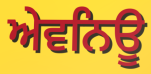
ਅੇਵਨਿਊ